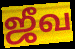
ஜீவ